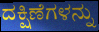
ದಕ್ಷಿಣೆಗಳನ್ನು